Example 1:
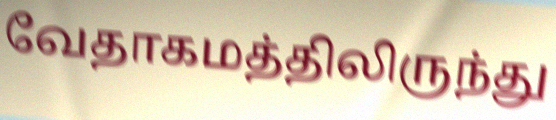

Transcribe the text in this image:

வேதாகமத்திலிருந்து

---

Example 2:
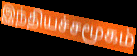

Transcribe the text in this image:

இந்தியச்சமூகம்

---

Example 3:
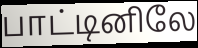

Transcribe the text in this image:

பாட்டினிலே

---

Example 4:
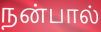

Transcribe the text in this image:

நன்பால்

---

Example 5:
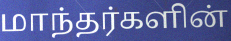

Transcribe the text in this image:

மாந்தர்களின்